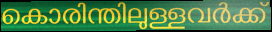
കൊരിന്തിലുള്ളവർക്ക്